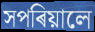
সপৰিয়ালে